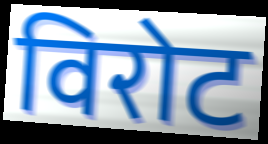
विरोट